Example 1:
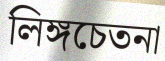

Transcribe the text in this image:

লিঙ্গচেতনা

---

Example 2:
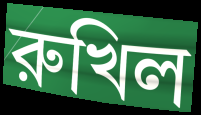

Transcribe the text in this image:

রুখিল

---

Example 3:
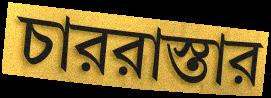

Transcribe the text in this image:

চাররাস্তার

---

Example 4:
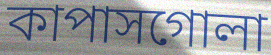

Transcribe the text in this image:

কাপাসগোলা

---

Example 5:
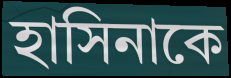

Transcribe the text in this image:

হাসিনাকে